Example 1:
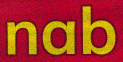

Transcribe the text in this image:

nab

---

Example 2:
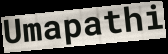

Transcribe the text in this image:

Umapathi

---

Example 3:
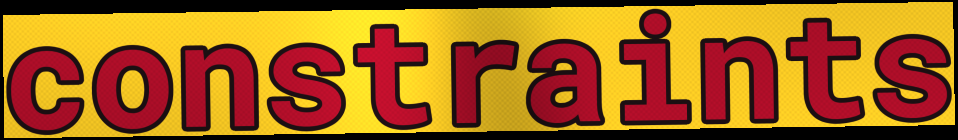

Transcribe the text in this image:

constraints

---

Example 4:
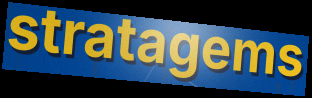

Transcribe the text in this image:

stratagems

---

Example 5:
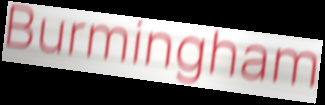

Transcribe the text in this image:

Burmingham